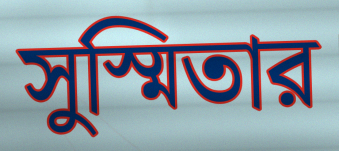
সুস্মিতার